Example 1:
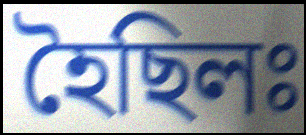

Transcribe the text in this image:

হৈছিলঃ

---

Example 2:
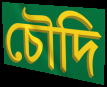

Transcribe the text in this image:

চৌদি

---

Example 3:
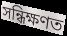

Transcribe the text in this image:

সন্ধিক্ষণত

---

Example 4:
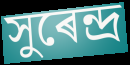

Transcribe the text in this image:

সুৰেন্দ্ৰ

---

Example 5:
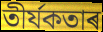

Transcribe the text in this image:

তীৰ্যকতাৰ